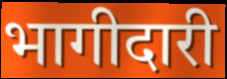
भागीदारी